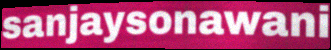
sanjaysonawani